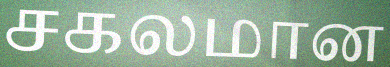
சகலமான